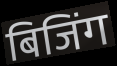
बिजिंग